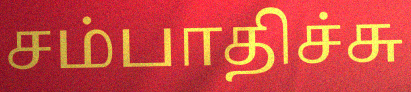
சம்பாதிச்சு